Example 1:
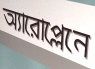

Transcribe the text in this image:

অ্যারোপ্লেনে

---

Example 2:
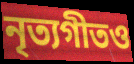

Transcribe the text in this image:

নৃত্যগীতও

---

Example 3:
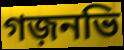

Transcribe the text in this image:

গজ়নভি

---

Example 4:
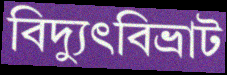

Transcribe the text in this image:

বিদ্যুৎবিভ্রাট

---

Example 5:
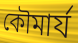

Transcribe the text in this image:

কৌমার্য